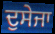
ਦੁਸੇਜਾ